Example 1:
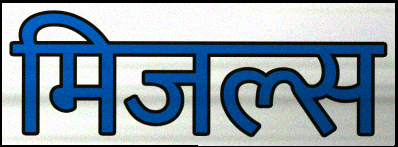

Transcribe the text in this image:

मिजल्स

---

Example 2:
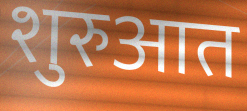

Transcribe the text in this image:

शुरुआत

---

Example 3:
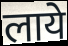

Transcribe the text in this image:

लाये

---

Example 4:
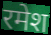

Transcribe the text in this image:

रमेश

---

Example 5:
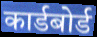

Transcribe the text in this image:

कार्डबोर्ड